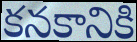
కనకానికి